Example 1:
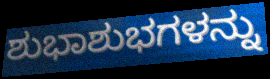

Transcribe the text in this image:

ಶುಭಾಶುಭಗಳನ್ನು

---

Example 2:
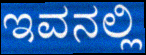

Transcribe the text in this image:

ಇವನಲ್ಲಿ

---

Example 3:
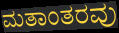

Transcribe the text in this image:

ಮತಾಂತರವು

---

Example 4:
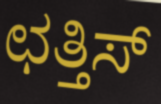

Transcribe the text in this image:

ಛತ್ತಿಸ್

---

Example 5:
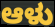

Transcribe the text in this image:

ಆಳು